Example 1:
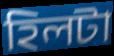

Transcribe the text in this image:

হিলটা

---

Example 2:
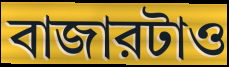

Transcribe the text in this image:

বাজারটাও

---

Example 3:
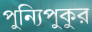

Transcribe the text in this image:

পুন্যিপুকুর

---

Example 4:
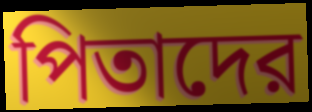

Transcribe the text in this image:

পিতাদের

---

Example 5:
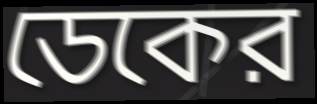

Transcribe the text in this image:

ডেকের